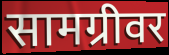
सामग्रीवर